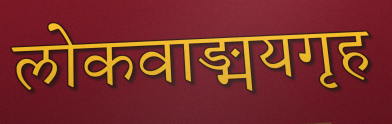
लोकवाङ्मयगृह